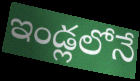
ఇండ్లలోనే